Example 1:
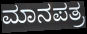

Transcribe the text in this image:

ಮಾನಪತ್ರ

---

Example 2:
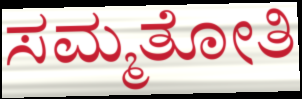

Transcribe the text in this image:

ಸಮ್ಮತೋತಿ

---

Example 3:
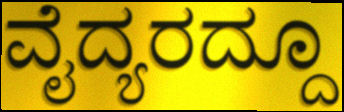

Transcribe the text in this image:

ವೈದ್ಯರದ್ದೂ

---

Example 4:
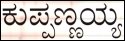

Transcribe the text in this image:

ಕುಪ್ಪಣ್ಣಯ್ಯ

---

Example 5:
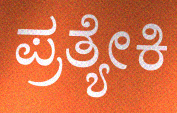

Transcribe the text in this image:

ಪ್ರತ್ಯೇಕಿ